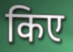
किए